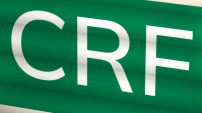
CRF